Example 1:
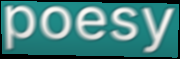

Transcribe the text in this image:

poesy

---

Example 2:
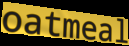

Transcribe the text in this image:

oatmeal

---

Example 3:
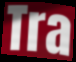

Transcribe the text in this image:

Tra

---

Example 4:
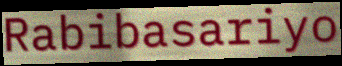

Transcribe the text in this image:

Rabibasariyo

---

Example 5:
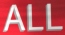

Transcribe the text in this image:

ALL